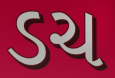
ડચ